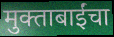
मुक्ताबाईंचा